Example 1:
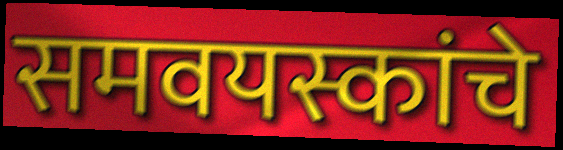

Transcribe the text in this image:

समवयस्कांचे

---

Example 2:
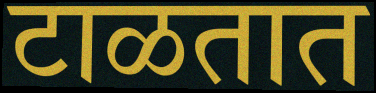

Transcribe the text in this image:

टाळतात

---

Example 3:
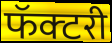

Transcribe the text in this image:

फॅक्‍टरी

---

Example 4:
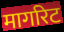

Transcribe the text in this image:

मार्गारेट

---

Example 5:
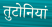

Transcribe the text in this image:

तुटोनियां